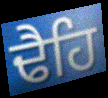
ਢੈਹਿ